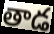
తాడ